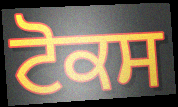
ਟੋਕਸ